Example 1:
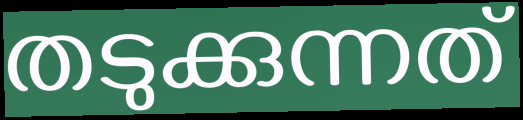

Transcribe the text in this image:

തടുക്കുന്നത്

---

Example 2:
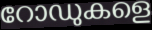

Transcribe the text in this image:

റോഡുകളെ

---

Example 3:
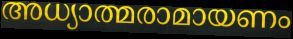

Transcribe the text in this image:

അധ്യാത്മരാമായണം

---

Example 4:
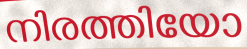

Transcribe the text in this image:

നിരത്തിയോ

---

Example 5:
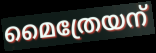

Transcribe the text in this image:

മൈത്രേയന്